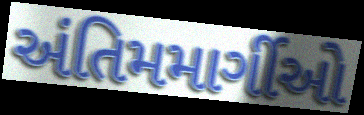
અંતિમમાર્ગીઓ